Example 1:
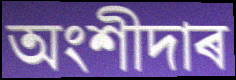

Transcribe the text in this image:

অংশীদাৰ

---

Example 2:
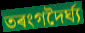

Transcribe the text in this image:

তৰংগদৈৰ্ঘ্য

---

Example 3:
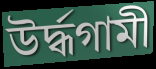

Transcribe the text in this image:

উৰ্দ্ধগামী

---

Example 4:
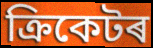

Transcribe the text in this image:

ক্ৰিকেটৰ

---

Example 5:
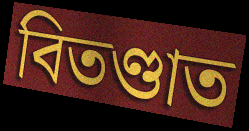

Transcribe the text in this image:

বিতণ্ডাত